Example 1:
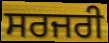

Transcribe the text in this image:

ਸਰਜਰੀ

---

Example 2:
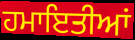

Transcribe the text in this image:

ਹਮਾਇਤੀਆਂ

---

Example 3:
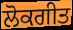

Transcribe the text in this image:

ਲੋਕਗੀਤ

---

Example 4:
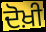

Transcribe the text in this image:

ਦੋਖ਼ੀ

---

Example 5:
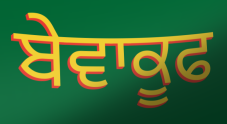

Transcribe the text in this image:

ਬੇਵਾਕੂਫ